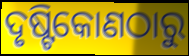
ଦୃଷ୍ଟିକୋଣଠାରୁ